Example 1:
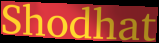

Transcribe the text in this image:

Shodhat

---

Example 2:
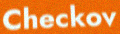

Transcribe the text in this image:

Checkov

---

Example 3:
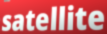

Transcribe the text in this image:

satellite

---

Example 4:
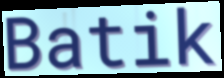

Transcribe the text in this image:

Batik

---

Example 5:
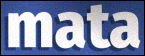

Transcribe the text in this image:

mata